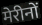
मेरीनों